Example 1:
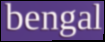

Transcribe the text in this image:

bengal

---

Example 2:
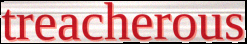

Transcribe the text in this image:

treacherous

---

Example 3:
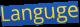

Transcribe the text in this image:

Languge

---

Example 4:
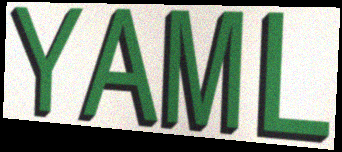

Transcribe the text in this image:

YAML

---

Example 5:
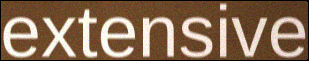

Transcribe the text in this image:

extensive